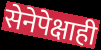
सेनेपेक्षाही